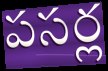
పసర్ల